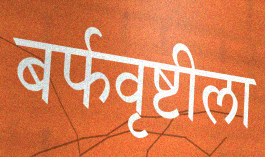
बर्फवृष्टीला